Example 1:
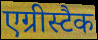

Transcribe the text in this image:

एग्रीस्टैक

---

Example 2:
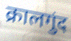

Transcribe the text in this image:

क्रालगुंद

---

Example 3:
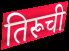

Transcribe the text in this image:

तिरूची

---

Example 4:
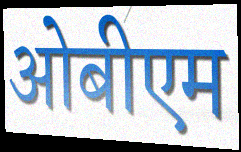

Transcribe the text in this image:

ओबीएम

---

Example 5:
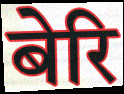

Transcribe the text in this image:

बेरि